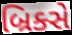
બ્રિક્સે